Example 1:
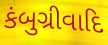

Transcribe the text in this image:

કંબુગ્રીવાદિ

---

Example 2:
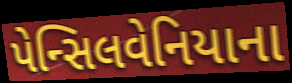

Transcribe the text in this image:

પેન્સિલવેનિયાના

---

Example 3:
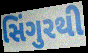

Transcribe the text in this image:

સિંગુરથી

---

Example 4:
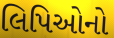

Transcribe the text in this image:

લિપિઓનો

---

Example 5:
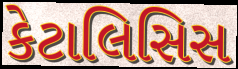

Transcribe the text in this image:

કેટાલિસિસ